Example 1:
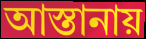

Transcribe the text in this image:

আস্তানায়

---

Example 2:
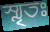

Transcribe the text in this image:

স্মৃতঃ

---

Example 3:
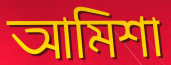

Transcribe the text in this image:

আমিশা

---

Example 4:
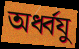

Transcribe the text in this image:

অর্ধ্বযু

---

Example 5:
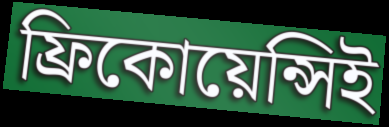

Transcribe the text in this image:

ফ্রিকোয়েন্সিই